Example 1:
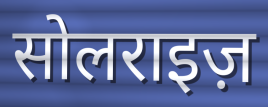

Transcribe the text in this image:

सोलराइज़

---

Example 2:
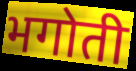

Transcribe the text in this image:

भगोती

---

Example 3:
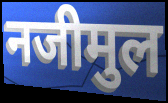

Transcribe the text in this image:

नजीमुल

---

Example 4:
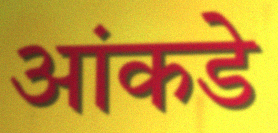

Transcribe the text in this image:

आंकडे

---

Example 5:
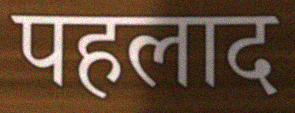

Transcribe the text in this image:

पहलाद